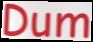
Dum